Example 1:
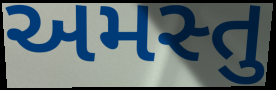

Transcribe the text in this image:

અમસ્તુ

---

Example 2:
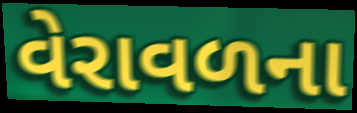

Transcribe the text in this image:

વેરાવળના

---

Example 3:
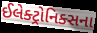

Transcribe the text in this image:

ઈલેક્ટ્રોનિક્સના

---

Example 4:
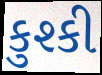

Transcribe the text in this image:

કુશ્કી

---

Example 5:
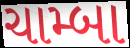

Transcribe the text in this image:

ચામ્બા